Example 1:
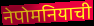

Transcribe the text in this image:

नेपोमनियाची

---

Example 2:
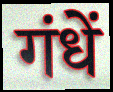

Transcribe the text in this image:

गंधें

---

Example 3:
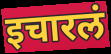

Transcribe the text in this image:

इचारलं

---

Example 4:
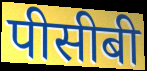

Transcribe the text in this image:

पीसीबी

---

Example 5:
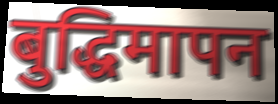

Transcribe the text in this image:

बुद्धिमापन